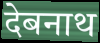
देबनाथ